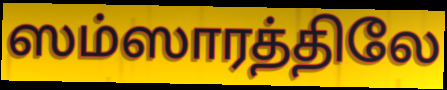
ஸம்ஸாரத்திலே